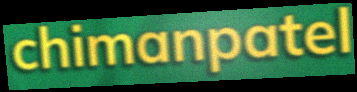
chimanpatel